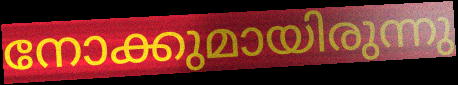
നോക്കുമായിരുന്നു